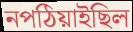
নপঠিয়াইছিল